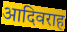
आदिवराह